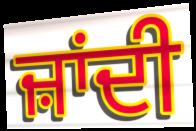
ਜ਼ਾਂਦੀ